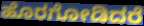
ಹೊರಗೋಡಿದರೆ